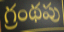
గ్రంథపు